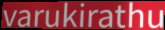
varukirathu